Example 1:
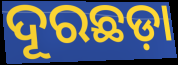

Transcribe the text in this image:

ଦୂରଛଡ଼ା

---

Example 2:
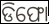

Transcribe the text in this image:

ଡିଫୋ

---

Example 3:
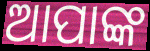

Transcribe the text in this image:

ଆପାଙ୍କ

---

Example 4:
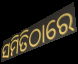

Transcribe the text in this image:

ସମିତିଠାରେ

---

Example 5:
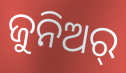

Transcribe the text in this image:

ଜୁନିଅର୍